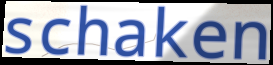
schaken